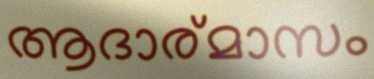
ആദാര്മാസം